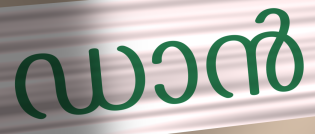
ഡാൻ